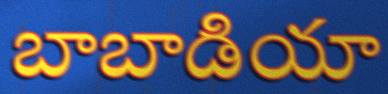
బాబాడియా